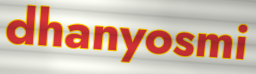
dhanyosmi